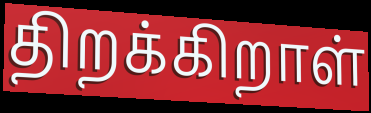
திறக்கிறாள்